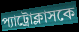
প্যাট্রোক্লাসকে